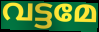
വട്ടമേ